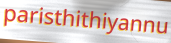
paristhithiyannu